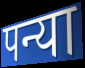
पन्या